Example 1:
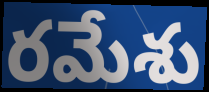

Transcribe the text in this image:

రమేశు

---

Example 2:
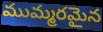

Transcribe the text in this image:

ముమ్మరమైన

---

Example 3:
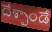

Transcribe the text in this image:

దేశ్పాండే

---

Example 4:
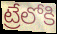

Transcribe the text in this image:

ట్రేలోకి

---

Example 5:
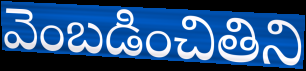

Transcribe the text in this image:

వెంబడించితిని